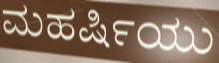
ಮಹರ್ಷಿಯು